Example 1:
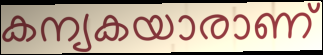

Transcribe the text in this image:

കന്യകയാരാണ്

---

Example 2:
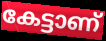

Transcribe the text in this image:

കേട്ടാണ്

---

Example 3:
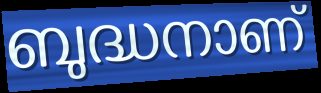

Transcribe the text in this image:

ബുദ്ധനാണ്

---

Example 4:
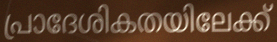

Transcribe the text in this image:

പ്രാദേശികതയിലേക്ക്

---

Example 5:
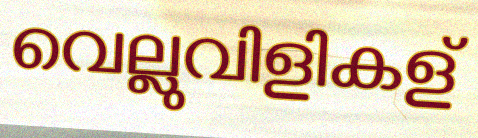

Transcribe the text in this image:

വെല്ലുവിളികള്